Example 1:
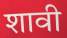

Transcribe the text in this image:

शावी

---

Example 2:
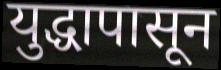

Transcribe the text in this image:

युद्धापासून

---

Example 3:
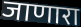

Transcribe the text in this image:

जाणारा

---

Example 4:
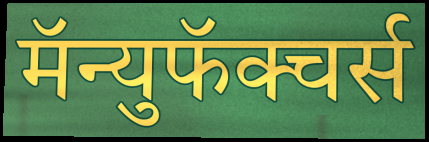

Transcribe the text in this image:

मॅन्युफॅक्चर्स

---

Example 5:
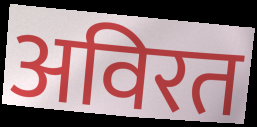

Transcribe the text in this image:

अविरत